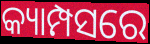
କ୍ୟାମ୍ପସରେ